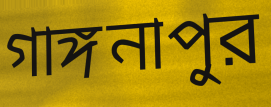
গাঙ্গনাপুর